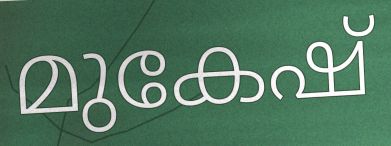
മുകേഷ്